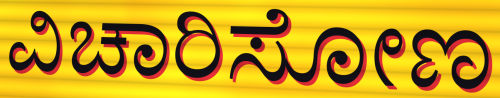
ವಿಚಾರಿಸೋಣ